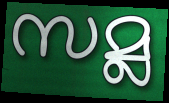
സമ്ല